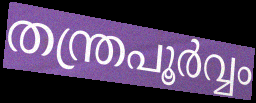
തന്ത്രപൂർവ്വം